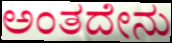
ಅಂತದೇನು